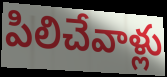
పిలిచేవాళ్లు